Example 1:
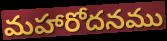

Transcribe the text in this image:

మహారోదనము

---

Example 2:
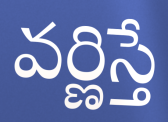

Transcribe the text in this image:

వర్ణిస్తే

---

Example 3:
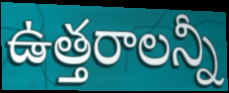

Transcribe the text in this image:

ఉత్తరాలన్నీ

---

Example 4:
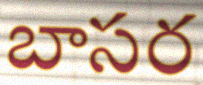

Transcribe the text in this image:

బాసర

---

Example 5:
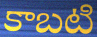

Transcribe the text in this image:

కాబటి